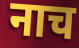
नाच